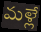
మళ్లే